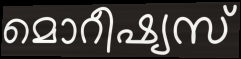
മൊറീഷ്യസ്